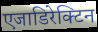
एजाडिरेक्टिन